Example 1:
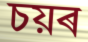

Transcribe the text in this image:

চয়ৰ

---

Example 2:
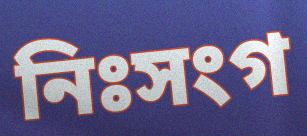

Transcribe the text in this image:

নিঃসংগ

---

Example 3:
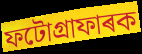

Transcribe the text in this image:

ফটোগ্ৰাফাৰক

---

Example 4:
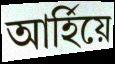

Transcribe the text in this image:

আৰ্হিয়ে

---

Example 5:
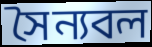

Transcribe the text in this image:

সৈন্যবল